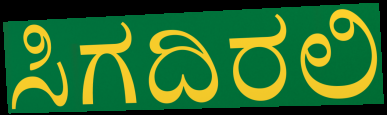
ಸಿಗದಿರಲಿ